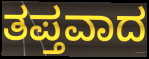
ತಪ್ತವಾದ